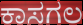
ಕಾಸಗಲ